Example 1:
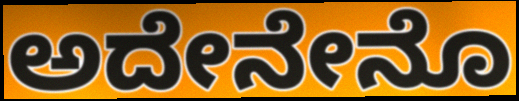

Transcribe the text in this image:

ಅದೇನೇನೊ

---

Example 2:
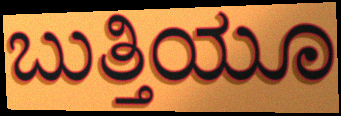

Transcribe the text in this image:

ಬುತ್ತಿಯೂ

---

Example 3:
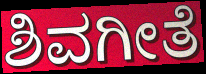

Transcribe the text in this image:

ಶಿವಗೀತೆ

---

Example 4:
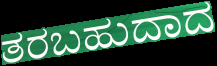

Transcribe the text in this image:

ತರಬಹುದಾದ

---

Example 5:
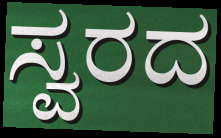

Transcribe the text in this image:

ಸ್ವರದ